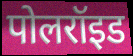
पोलरॉइड